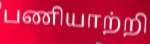
பணியாற்றி